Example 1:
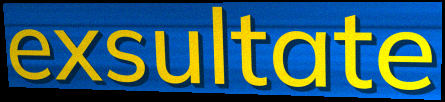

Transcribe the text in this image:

exsultate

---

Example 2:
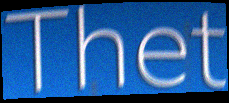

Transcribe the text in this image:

Thet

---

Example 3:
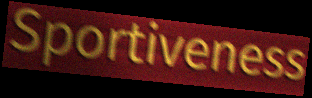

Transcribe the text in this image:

Sportiveness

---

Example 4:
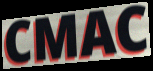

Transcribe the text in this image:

CMAC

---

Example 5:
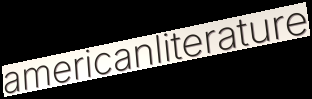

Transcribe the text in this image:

americanliterature